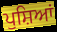
ਪੁਸ਼ਿਆਂ